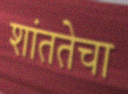
शांततेचा